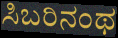
ಸಿಬರಿನಂಥ